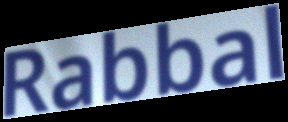
Rabbal